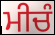
ਮੀਚੰ